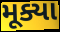
મૂક્યા